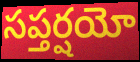
సప్తర్షయో